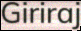
Giriraj